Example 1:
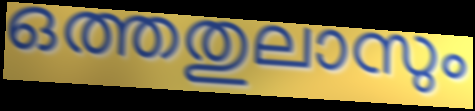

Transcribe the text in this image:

ഒത്തതുലാസും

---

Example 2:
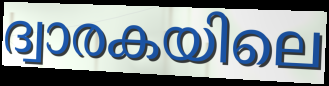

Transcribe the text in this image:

ദ്വാരകയിലെ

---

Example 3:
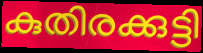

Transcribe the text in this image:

കുതിരക്കുട്ടി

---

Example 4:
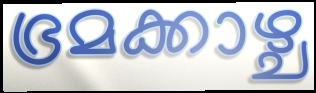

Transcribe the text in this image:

ഭ്രമക്കാഴ്ച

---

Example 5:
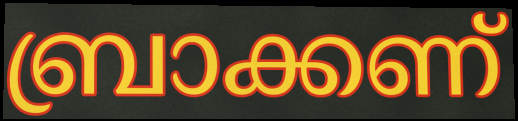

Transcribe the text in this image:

ബ്രാക്കണ്